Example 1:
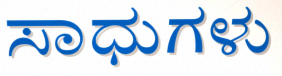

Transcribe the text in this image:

ಸಾಧುಗಳು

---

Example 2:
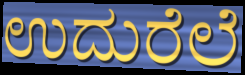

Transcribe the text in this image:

ಉದುರೆಲೆ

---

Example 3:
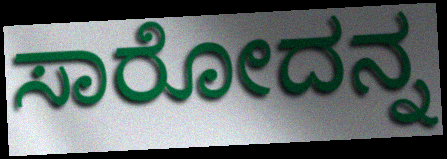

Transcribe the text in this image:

ಸಾರೋದನ್ನ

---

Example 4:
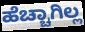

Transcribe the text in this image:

ಹೆಚ್ಚಾಗಿಲ್ಲ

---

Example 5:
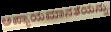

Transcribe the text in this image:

ಅಪ್ಯಾಯಮಾನತೆಯನ್ನು